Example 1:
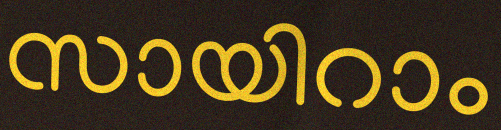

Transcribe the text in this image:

സായിറാം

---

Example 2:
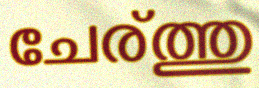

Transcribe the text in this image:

ചേര്ത്തു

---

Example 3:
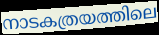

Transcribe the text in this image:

നാടകത്രയത്തിലെ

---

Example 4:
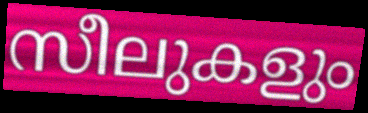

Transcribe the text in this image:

സീലുകളും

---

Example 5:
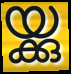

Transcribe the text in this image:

യ്ക്കു